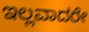
ಇಲ್ಲವಾದರೇ